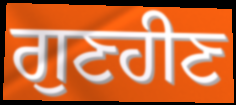
ਗੁਣਹੀਣ